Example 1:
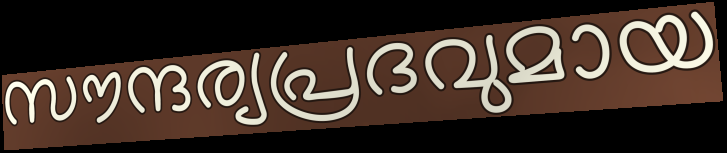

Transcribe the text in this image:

സൗന്ദര്യപ്രദവുമായ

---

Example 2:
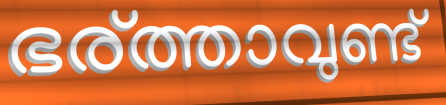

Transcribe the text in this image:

ഭര്ത്താവുണ്ട്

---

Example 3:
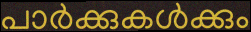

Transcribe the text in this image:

പാർക്കുകൾക്കും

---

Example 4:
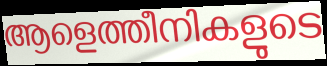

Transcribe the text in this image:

ആളെത്തീനികളുടെ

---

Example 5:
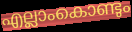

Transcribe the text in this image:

എല്ലാംകൊണ്ടും